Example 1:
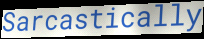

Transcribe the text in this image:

Sarcastically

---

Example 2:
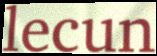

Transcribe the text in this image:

lecun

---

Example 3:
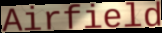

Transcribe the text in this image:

Airfield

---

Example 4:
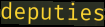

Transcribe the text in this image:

deputies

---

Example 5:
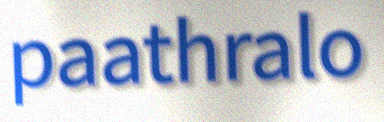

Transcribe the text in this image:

paathralo